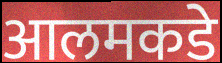
आलमकडे